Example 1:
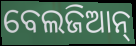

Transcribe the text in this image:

ବେଲଜିଆନ୍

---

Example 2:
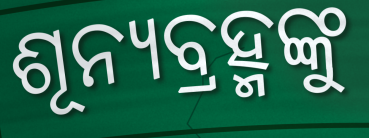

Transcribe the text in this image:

ଶୂନ୍ୟବ୍ରହ୍ମଙ୍କୁ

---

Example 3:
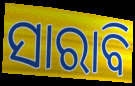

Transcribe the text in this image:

ସାରାବି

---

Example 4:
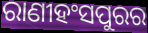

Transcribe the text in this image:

ରାଣୀହଂସପୁରର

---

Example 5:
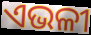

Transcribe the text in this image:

ଏଭଳୀ